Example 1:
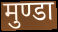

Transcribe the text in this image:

मुण्डा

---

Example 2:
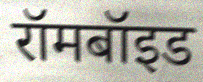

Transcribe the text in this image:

रॉमबॉइड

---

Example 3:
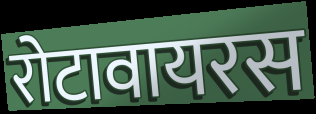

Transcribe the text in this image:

रोटावायरस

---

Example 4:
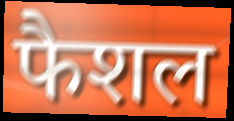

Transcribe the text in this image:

फैशल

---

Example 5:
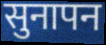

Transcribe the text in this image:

सुनापन